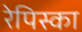
रेपिस्का